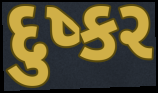
દુષ્કર